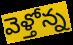
వెళ్తోన్న